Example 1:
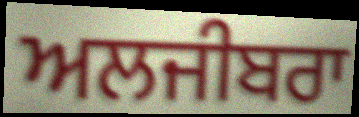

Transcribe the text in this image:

ਅਲਜੀਬਰਾ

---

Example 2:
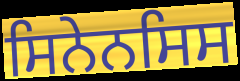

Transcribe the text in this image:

ਸਿਨੇਨਸਿਸ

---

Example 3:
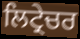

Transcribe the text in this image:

ਲਿਟ੍ਰੇਚਰ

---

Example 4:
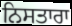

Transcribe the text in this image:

ਨਿਸਤਾਰਾ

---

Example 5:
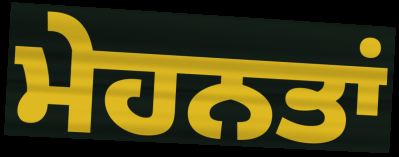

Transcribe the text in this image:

ਮੇਹਨਤਾਂ